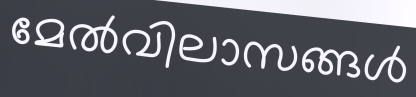
മേൽവിലാസങ്ങൾ